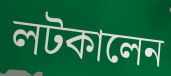
লটকালেন